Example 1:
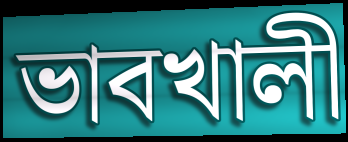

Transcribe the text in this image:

ভাবখালী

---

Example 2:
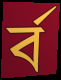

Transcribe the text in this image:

র্ব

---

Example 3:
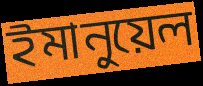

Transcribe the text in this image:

ইমানুয়েল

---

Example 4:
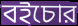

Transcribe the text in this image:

বইচোর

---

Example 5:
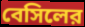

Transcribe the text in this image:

বেসিলের